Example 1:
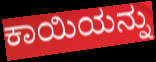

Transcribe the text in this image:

ಕಾಯಿಯನ್ನು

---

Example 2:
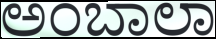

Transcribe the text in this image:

ಅಂಬಾಲಾ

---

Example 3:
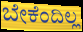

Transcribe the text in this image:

ಬೇಕೆಂದಿಲ್ಲ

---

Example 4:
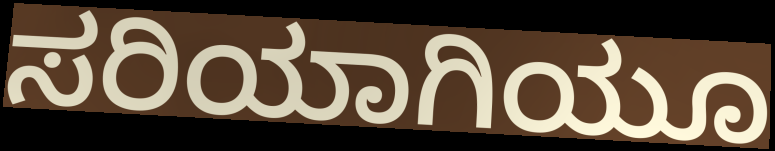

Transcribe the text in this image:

ಸರಿಯಾಗಿಯೂ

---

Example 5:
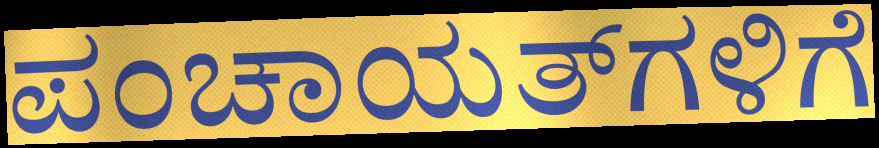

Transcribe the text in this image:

ಪಂಚಾಯತ್‌ಗಳಿಗೆ